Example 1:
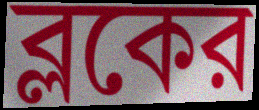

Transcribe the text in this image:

ব্লকের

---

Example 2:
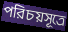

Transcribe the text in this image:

পরিচয়সূত্রে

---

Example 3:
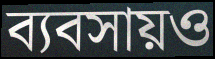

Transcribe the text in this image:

ব্যবসায়ও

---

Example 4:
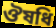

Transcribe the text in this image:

ঔষধি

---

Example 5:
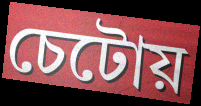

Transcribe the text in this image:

চেটোয়